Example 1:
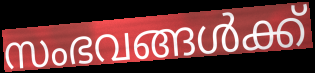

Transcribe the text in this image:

സംഭവങ്ങൾക്ക്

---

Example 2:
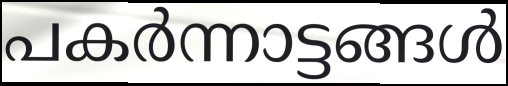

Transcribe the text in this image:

പകർന്നാട്ടങ്ങൾ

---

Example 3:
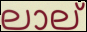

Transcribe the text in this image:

ലാല്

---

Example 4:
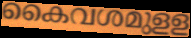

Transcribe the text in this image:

കൈവശമുളള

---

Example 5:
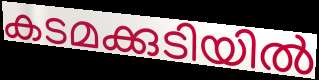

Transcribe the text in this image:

കടമക്കുടിയിൽ